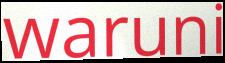
waruni